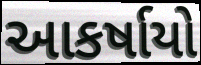
આકર્ષાયો